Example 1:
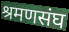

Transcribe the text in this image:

श्रमणसंघ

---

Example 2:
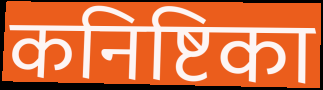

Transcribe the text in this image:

कनिष्टिका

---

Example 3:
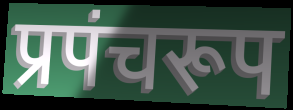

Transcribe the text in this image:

प्रपंचरूप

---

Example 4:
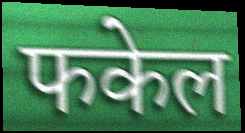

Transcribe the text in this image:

फकेल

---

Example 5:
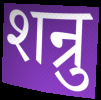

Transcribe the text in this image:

शन्रु